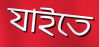
যাইতে